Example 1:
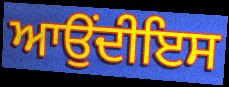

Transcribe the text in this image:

ਆਉਂਦੀਇਸ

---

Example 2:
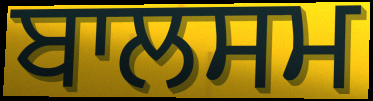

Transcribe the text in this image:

ਬਾਲਸਮ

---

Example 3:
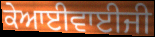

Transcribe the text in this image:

ਕੇਆਈਵਾਈਜੀ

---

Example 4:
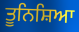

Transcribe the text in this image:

ਤੂਨਿਸ਼ਿਆ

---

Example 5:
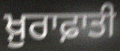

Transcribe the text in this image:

ਖ਼ੁਰਾਫ਼ਾਤੀ